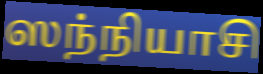
ஸந்நியாசி